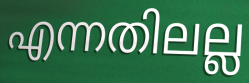
എന്നതിലല്ല